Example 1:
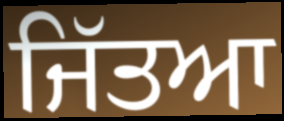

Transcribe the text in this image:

ਜਿੱਤਆ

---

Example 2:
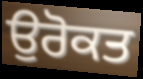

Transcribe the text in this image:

ਉਰੋਕਤ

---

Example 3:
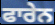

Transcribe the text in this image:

ਫਾਰੇਨ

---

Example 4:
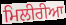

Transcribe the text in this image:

ਮਿਲੀਰੀਆ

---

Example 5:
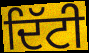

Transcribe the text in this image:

ਦਿੱਟੀ